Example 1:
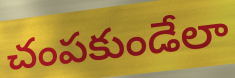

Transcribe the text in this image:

చంపకుండేలా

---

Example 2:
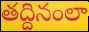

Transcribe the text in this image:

తద్దినంలా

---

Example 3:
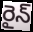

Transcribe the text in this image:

రైన్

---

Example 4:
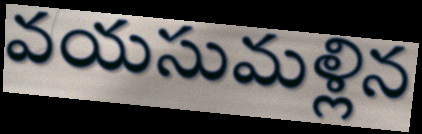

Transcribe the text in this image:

వయసుమళ్లిన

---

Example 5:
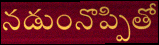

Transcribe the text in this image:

నడుంనొప్పితో